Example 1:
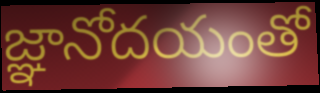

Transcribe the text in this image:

జ్ఞానోదయంతో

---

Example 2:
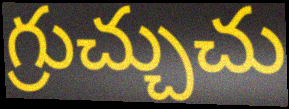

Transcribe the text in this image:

గ్రుచ్చుచు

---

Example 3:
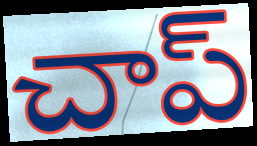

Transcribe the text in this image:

చాప్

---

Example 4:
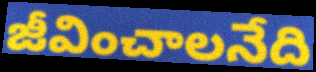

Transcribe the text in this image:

జీవించాలనేది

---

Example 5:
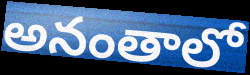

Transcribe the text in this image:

అనంతాలో